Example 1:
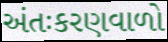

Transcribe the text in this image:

અંતઃકરણવાળો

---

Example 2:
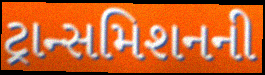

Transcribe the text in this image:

ટ્રાન્સમિશનની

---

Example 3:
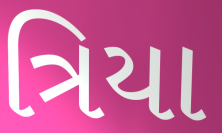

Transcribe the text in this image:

ત્રિયા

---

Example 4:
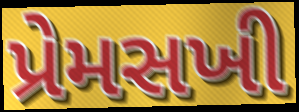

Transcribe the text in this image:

પ્રેમસખી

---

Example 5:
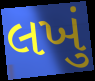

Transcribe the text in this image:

લખું